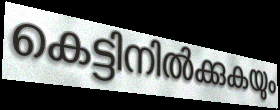
കെട്ടിനിൽക്കുകയും